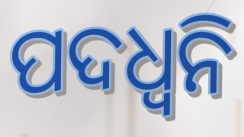
ପଦଧ୍ଵନି